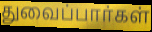
துவைப்பார்கள்